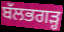
ਬੱਲਭਗੜ੍ਹ